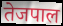
तेजपाल